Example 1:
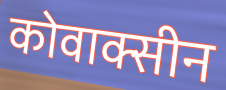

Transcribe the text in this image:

कोवाक्सीन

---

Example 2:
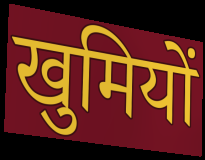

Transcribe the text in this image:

खुमियों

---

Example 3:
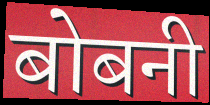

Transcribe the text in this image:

बोबनी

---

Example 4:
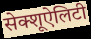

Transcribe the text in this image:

सेक्शूऐलिटी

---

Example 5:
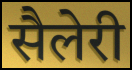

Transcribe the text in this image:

सैलेरी